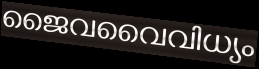
ജൈവവൈവിധ്യം